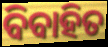
ବିବାହିତ